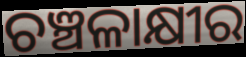
ଚଞ୍ଚଳାକ୍ଷୀର